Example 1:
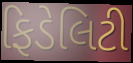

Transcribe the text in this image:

ફિડેલિટી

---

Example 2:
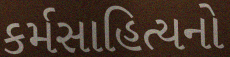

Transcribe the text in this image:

કર્મસાહિત્યનો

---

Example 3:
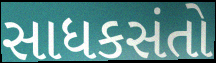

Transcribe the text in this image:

સાધકસંતો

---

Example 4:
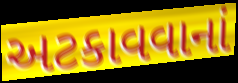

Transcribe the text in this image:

અટકાવવાનાં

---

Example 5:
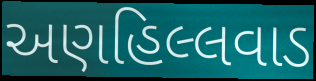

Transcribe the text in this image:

અણહિલ્લવાડ